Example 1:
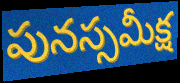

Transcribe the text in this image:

పునస్సమీక్ష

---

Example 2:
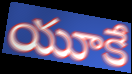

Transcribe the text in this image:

యూకే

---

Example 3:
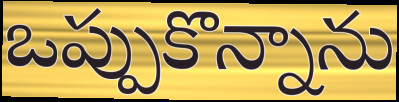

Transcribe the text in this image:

ఒప్పుకొన్నాను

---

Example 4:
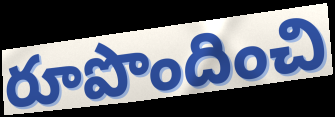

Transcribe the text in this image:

రూపొందించి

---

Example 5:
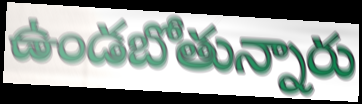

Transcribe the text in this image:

ఉండబోతున్నారు